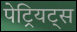
पेट्रियट्स